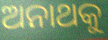
ଅନାଥକୁ